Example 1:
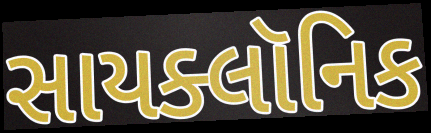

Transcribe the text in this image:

સાયક્લૉનિક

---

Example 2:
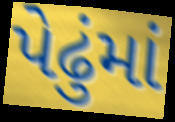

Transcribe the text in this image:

પેઢુંમાં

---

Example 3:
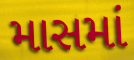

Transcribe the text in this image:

માસમાં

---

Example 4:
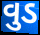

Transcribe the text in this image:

વુડ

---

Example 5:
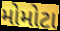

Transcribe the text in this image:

મોમોટા